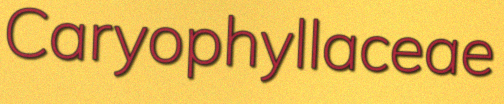
Caryophyllaceae